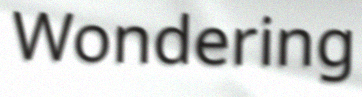
Wondering